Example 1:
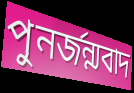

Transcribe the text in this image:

পুনর্জন্মবাদ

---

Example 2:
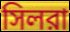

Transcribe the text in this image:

সিলরা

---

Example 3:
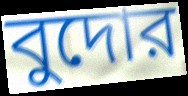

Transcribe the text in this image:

বুদোর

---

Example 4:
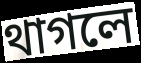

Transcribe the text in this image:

থাগলে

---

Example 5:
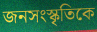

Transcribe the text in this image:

জনসংস্কৃতিকে